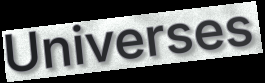
Universes